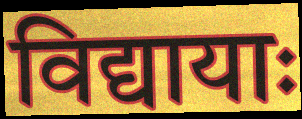
विद्यायाः